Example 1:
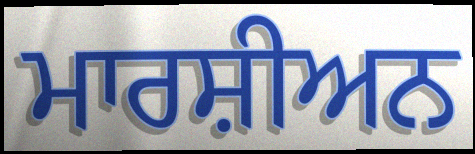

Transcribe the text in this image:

ਮਾਰਸ਼ੀਅਨ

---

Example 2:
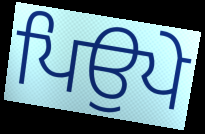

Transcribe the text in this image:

ਪਿਉਪੇ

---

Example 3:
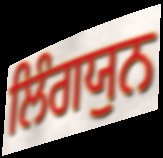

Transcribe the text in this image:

ਲਿੰਗਯੁਨ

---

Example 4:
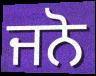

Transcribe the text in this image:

ਜਨੋ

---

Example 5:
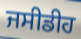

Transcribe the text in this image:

ਜਸੀਡੀਹ